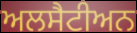
ਅਲਸੈਟੀਅਨ